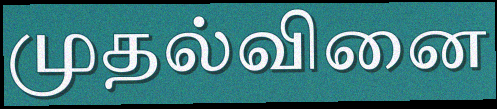
முதல்வினை